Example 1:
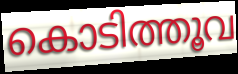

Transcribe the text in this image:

കൊടിത്തൂവ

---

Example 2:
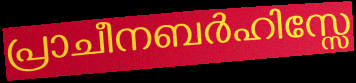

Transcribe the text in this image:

പ്രാചീനബർഹിസ്സേ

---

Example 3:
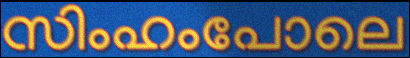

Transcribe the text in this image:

സിംഹംപോലെ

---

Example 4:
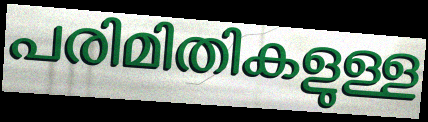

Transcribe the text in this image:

പരിമിതികളുള്ള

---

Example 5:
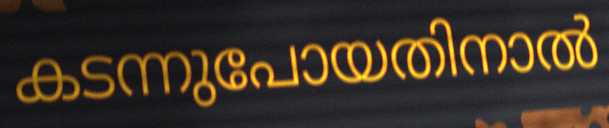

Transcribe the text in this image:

കടന്നുപോയതിനാൽ